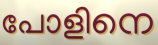
പോളിനെ